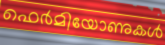
ഫെർമിയോണുകൾ